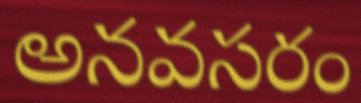
అనవసరం